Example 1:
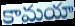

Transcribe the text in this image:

కామయా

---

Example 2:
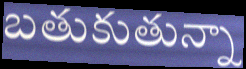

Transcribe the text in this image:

బతుకుతున్నా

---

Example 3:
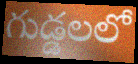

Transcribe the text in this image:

గుడ్డలలో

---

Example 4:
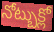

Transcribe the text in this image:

నోట్బుక్లో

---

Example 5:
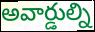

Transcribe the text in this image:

అవార్డుల్ని